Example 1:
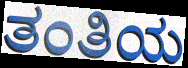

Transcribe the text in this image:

ತಂತಿಯ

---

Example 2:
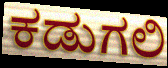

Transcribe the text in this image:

ಕಡುಗಲಿ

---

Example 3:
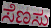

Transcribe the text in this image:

ಸೆಣಸು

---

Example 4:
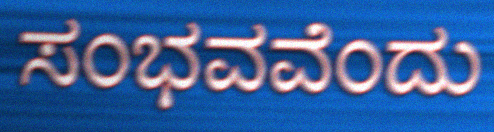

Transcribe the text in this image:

ಸಂಭವವೆಂದು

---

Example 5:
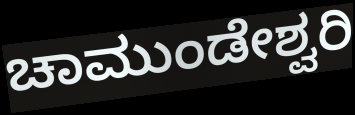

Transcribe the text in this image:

ಚಾಮುಂಡೇಶ್ವರಿ